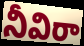
నీవిరా